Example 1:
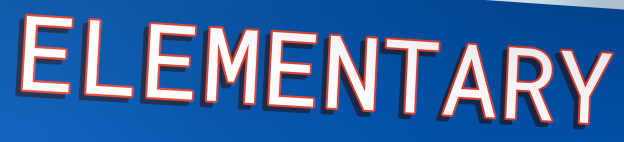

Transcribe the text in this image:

ELEMENTARY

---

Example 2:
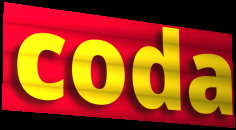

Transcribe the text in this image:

coda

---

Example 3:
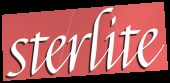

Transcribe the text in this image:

sterlite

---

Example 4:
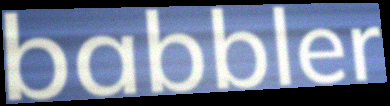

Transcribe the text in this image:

babbler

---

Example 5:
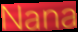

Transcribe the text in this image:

Nana